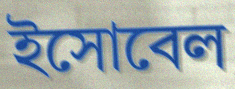
ইসোবেল